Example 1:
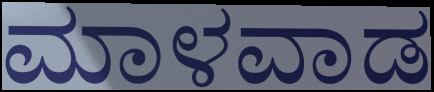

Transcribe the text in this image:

ಮಾಳವಾಡ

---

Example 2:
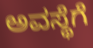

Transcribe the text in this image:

ಅವಸ್ಥೆಗೆ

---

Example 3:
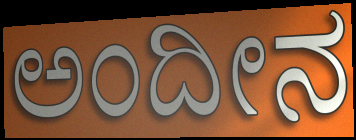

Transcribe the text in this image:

ಅಂದೀನ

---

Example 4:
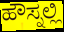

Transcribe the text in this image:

ಹೌಸ್ನಲ್ಲಿ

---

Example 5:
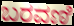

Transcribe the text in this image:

ಬರವಣಿ